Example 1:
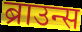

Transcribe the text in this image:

ब्राउन्स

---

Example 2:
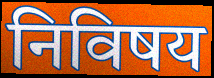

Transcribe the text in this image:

निविषय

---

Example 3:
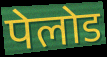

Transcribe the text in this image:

पेलोड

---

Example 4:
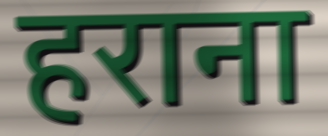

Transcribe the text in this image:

हराना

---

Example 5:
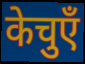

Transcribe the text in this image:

केचुएँ